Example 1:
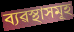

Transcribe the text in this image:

ব্যৱস্থাসমূহ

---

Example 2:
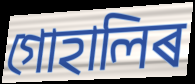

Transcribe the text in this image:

গোহালিৰ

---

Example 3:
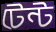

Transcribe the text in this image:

টেন্ট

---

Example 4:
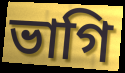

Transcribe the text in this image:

ভাগি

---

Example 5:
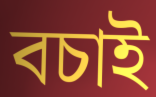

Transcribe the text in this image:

বচাই